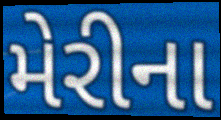
મેરીના